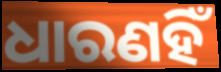
ଧାରଣହିଁ